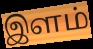
இளம்